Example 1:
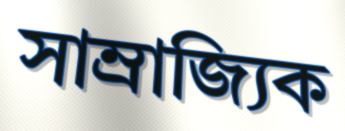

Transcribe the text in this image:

সাম্ৰাজ্যিক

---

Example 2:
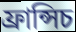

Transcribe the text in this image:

ফ্ৰান্সিচ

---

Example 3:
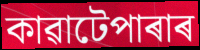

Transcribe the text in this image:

কাৱাটেপাৰাৰ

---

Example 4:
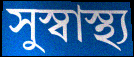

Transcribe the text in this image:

সুস্বাস্থ্য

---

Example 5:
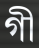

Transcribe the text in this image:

গী